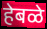
हेबळे